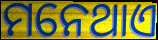
ମନେଥାଏ